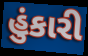
હુંકારી